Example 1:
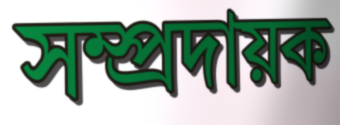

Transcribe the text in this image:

সম্প্ৰদায়ক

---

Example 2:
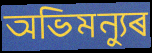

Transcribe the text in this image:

অভিমন্যুৰ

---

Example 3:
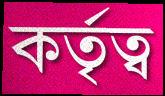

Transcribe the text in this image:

কৰ্তৃত্ব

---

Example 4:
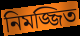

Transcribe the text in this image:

নিমজ্জিত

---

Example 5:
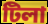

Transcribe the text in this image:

টিলা